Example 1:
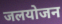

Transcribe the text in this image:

जलयोजन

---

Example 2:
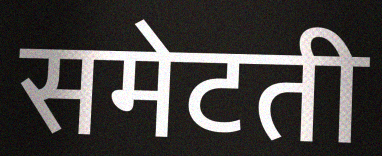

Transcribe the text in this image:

समेटती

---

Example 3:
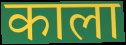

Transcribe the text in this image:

काला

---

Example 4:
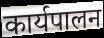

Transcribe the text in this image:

कार्यपालन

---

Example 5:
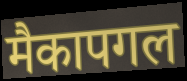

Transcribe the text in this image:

मैकापगल